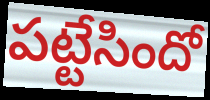
పట్టేసిందో